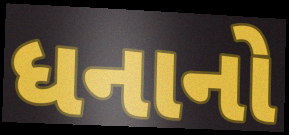
ધનાનો